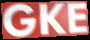
GKE